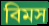
বিমস